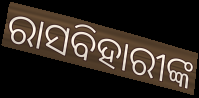
ରାସବିହାରୀଙ୍କ